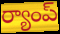
ర్యాంప్